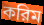
করিম